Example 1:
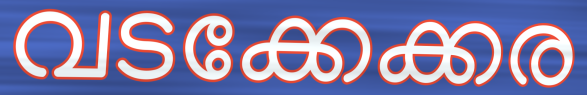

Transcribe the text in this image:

വടക്കേക്കര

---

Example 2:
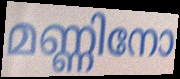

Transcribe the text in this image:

മണ്ണിനോ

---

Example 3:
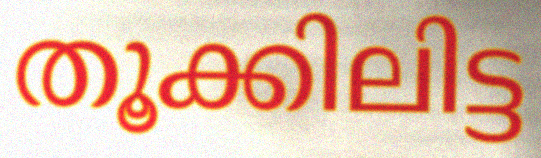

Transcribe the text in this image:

തൂക്കിലിട്ട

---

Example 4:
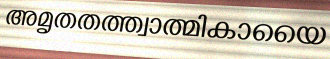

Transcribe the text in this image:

അമൃതതത്ത്വാത്മികായൈ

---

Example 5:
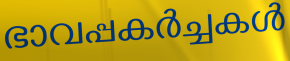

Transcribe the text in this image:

ഭാവപ്പകർച്ചകൾ